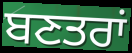
ਬਣਤਰਾਂ